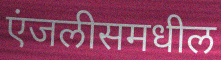
एंजलीसमधील